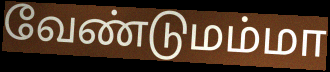
வேண்டுமம்மா